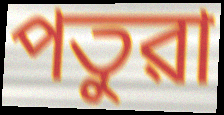
পতুৱা